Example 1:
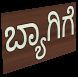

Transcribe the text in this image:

ಬ್ಯಾಗಿಗೆ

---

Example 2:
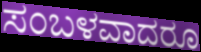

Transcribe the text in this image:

ಸಂಬಳವಾದರೂ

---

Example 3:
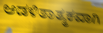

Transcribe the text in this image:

ಆಡಳಿತಾತ್ಮಕವಾಗಿ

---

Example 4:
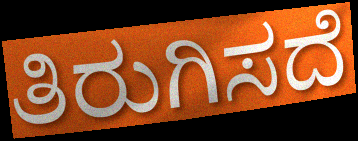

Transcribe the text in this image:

ತಿರುಗಿಸದೆ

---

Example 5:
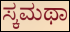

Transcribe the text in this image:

ಸ್ಕಮಥಾ